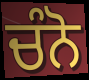
ਚੰਨੋ